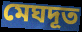
মেঘদূত